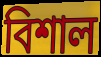
বিশাল